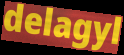
delagyl